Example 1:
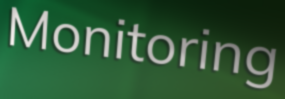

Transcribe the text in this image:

Monitoring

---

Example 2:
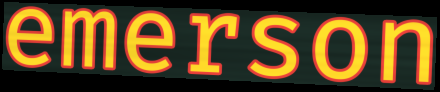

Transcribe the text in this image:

emerson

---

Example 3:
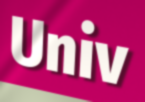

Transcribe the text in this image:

Univ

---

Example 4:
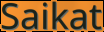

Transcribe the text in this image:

Saikat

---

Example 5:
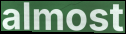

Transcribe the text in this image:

almost